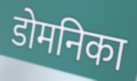
डोमनिका